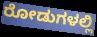
ರೋಡುಗಳಲ್ಲಿ